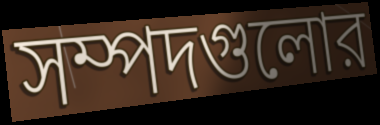
সম্পদগুলোর